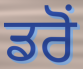
ਡਰੋਂ